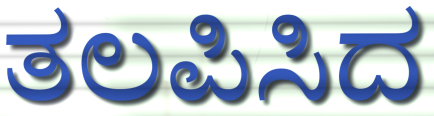
ತಲಪಿಸಿದ